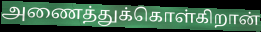
அணைத்துக்கொள்கிறான்